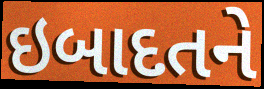
ઇબાદતને